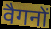
वैगनों